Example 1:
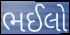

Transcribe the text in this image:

ભઈલો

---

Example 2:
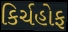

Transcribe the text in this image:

કિર્ચહોફ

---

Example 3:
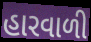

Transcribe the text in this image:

હારવાળી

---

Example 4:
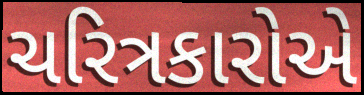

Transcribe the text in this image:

ચરિત્રકારોએ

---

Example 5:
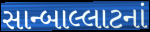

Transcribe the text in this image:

સાન્બાલ્લાટનાં